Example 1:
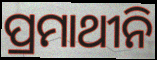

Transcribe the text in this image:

ପ୍ରମାଥୀନି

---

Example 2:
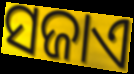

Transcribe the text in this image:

ସଜାଏ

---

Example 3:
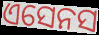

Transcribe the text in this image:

ଏସେନସ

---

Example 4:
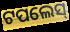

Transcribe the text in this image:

ଟପଲେସ୍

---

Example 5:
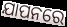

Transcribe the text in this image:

ଯାପନରେ